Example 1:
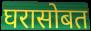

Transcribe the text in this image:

घरासोबत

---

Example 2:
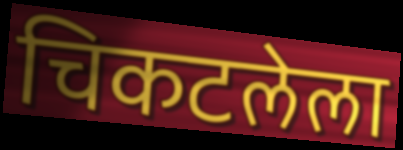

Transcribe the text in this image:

चिकटलेला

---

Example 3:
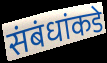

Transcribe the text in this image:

संबंधांकडे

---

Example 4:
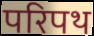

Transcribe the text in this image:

परिपथ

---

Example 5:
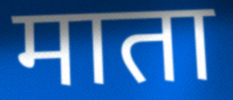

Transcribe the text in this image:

माता